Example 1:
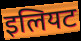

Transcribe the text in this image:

इलियट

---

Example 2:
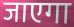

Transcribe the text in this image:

जाएगा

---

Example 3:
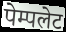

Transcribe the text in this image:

पेम्पलेट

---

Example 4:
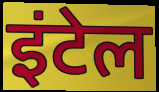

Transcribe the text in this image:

इंटेल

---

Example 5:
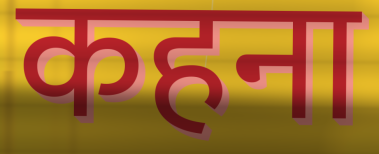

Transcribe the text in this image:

कहना